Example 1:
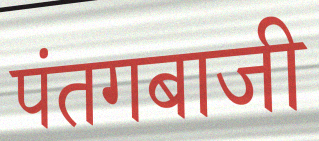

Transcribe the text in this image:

पंतगबाजी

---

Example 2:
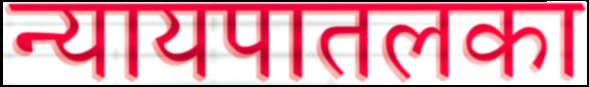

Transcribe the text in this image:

न्यायपातलका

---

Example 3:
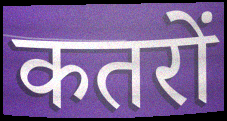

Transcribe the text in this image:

कतरों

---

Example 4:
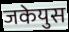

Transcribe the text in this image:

जकेयुस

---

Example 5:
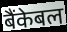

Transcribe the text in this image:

बैंकेबल